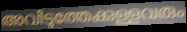
അവിടുത്തേക്കുള്ളവരും